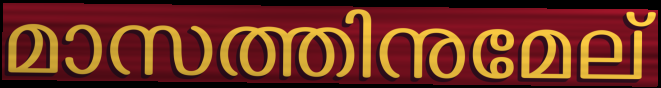
മാസത്തിനുമേല്